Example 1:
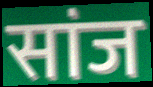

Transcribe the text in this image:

सांज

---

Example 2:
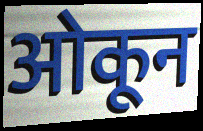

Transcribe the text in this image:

ओकून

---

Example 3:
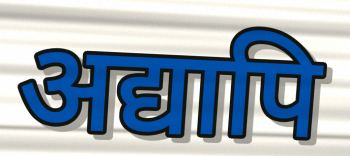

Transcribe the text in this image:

अद्यापि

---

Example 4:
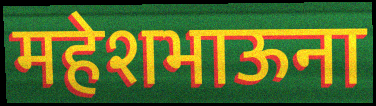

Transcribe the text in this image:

महेशभाऊना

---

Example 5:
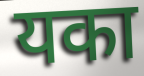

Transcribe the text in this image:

यका